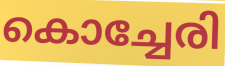
കൊച്ചേരി